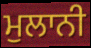
ਮੁਲਾਨੀ